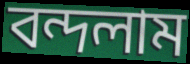
বন্দলাম